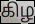
கிழ